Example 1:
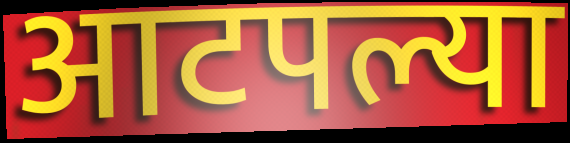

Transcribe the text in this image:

आटपल्या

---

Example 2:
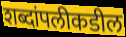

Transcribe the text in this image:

शब्दांपलीकडील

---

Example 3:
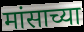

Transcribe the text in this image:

मांसाच्या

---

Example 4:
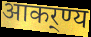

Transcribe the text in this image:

आकर्ण्य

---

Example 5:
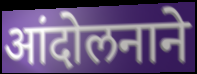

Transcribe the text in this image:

आंदोलनाने